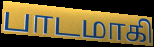
பாடமாகி